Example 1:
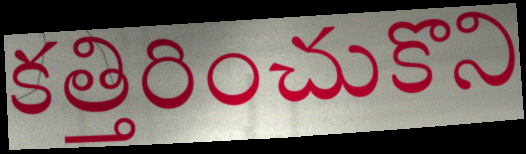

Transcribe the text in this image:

కత్తిరించుకొని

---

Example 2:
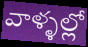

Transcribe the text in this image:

వాళ్ళల్లో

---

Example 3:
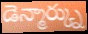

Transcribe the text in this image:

డెన్మార్క్ను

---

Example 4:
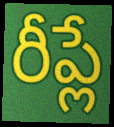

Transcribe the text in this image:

రీప్లే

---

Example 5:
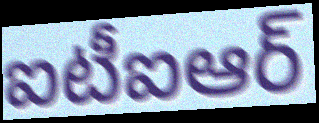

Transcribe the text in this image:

ఐటీఐఆర్